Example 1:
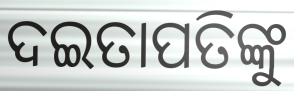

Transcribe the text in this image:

ଦଇତାପତିଙ୍କୁ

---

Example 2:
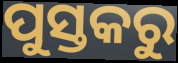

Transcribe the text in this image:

ପୁସ୍ତକରୁ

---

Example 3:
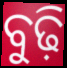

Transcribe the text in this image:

ବୁଢ଼ି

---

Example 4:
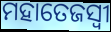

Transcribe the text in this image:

ମହାତେଜସ୍ୱୀ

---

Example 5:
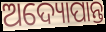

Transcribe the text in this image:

ଅଦ୍ୟୋପାନ୍ତ